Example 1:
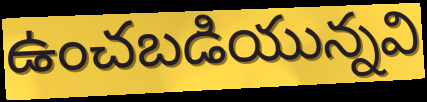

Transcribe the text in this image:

ఉంచబడియున్నవి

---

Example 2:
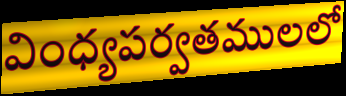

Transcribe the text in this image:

వింధ్యపర్వతములలో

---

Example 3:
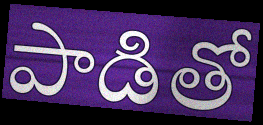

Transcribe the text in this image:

పాడితో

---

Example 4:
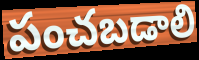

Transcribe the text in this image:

పంచబడాలి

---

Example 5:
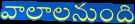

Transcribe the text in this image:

వాలాలనుంది